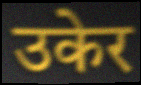
उकेर